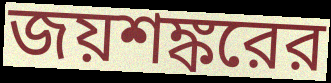
জয়শঙ্করের